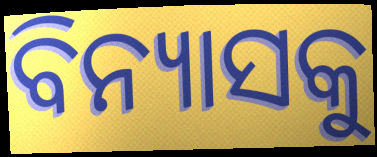
ବିନ୍ୟାସକୁ